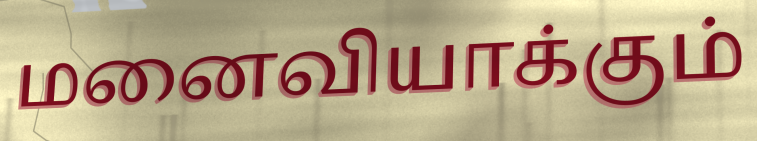
மனைவியாக்கும்